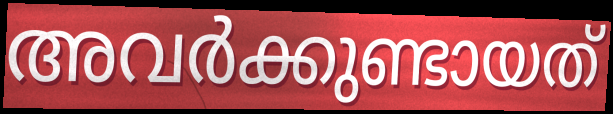
അവർക്കുണ്ടായത്